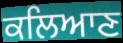
ਕਲਿਆਣ